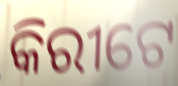
କିରୀଟେ